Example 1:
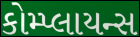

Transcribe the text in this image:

કોમ્પ્લાયન્સ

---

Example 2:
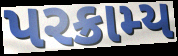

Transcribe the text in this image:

પરક્રામ્ય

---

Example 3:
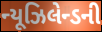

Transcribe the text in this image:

ન્યૂઝિલેન્ડની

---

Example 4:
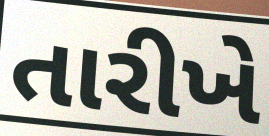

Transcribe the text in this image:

તારીખે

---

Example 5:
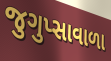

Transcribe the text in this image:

જુગુપ્સાવાળા